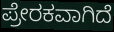
ಪ್ರೇರಕವಾಗಿದೆ